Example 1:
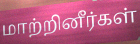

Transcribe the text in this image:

மாற்றினீர்கள்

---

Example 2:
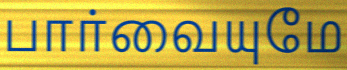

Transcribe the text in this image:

பார்வையுமே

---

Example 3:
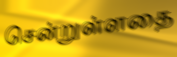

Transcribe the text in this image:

சென்றுள்ளதை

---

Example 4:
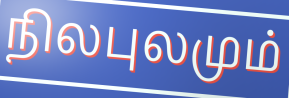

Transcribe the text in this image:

நிலபுலமும்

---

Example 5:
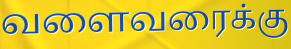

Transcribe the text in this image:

வளைவரைக்கு